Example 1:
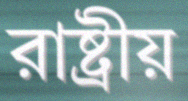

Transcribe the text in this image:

রাষ্ট্রীয়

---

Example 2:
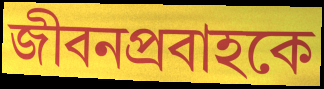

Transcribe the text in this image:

জীবনপ্রবাহকে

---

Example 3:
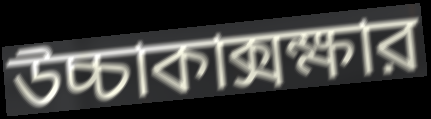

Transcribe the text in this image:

উচ্চাকাক্সক্ষার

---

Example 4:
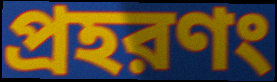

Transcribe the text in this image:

প্রহরণং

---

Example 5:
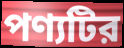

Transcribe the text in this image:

পণ্যটির